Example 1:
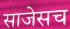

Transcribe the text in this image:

साजेसच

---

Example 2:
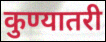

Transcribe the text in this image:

कुण्यातरी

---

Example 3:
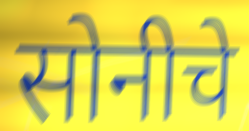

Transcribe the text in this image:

सोनीचे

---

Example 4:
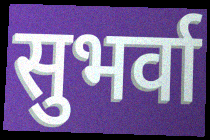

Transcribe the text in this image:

सुभर्वा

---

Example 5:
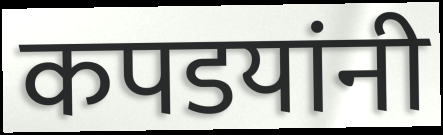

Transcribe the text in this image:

कपडयांनी